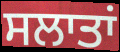
ਸਲਾਤਾਂ